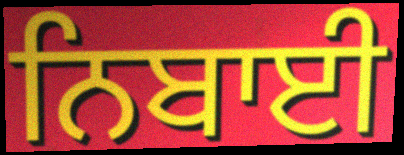
ਨਿਬਾਈ